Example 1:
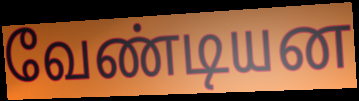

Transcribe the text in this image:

வேண்டியன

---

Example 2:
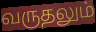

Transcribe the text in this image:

வருதலும்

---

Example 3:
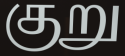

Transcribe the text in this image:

குறு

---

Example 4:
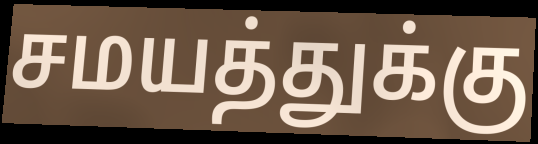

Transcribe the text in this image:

சமயத்துக்கு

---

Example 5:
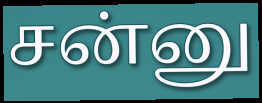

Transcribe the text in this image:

சன்னு